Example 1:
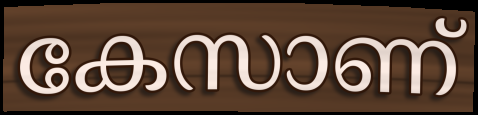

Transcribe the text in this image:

കേസാണ്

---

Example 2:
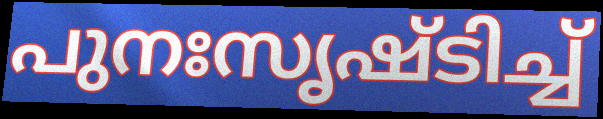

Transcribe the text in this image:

പുനഃസൃഷ്ടിച്ച്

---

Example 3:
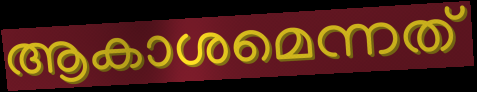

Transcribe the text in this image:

ആകാശമെന്നത്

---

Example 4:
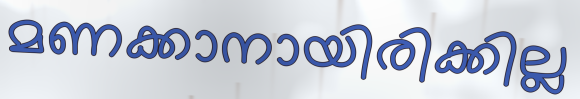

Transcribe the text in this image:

മണക്കാനായിരിക്കില്ല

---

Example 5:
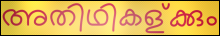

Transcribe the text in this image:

അതിഥികള്ക്കും